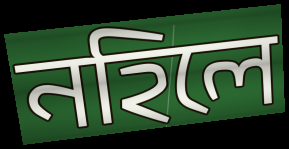
নহিলে